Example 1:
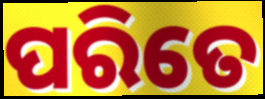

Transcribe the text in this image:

ପରିତେ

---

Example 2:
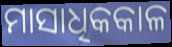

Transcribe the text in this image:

ମାସାଧିକକାଳ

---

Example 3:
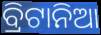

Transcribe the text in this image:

ବ୍ରିଟାନିଆ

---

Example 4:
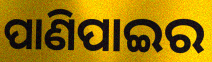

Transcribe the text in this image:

ପାଣିପାଇର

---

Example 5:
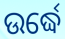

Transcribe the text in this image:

ଉର୍ଦ୍ଧେ